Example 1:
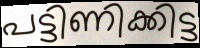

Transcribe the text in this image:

പട്ടിണിക്കിട്ട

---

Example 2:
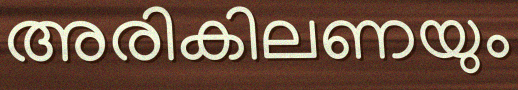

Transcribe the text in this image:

അരികിലണയും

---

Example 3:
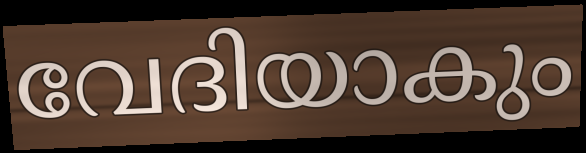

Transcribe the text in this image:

വേദിയാകും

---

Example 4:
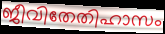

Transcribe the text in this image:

ജീവിതേതിഹാസം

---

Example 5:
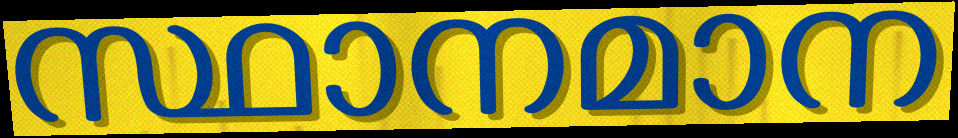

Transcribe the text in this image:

സ്ഥാനമാന